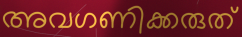
അവഗണിക്കരുത്